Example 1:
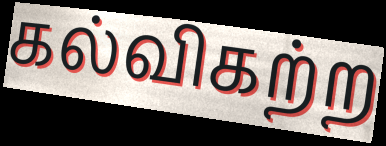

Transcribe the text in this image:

கல்விகற்ற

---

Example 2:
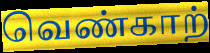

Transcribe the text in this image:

வெண்காற்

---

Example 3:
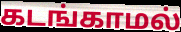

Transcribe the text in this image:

கடங்காமல்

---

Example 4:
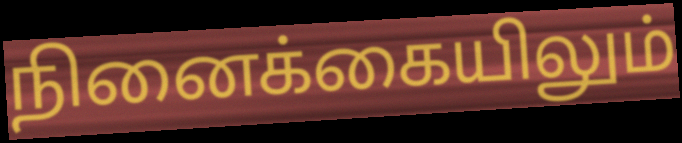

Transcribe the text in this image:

நினைக்கையிலும்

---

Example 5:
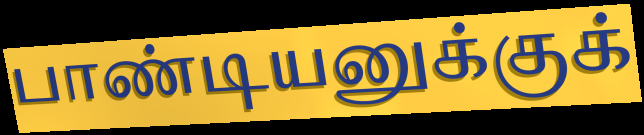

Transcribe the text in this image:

பாண்டியனுக்குக்